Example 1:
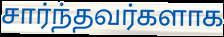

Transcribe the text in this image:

சார்ந்தவர்களாக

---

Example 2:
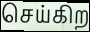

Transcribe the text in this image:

செய்கிற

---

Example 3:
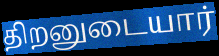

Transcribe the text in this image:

திறனுடையார்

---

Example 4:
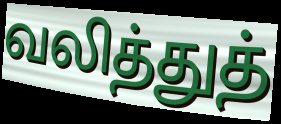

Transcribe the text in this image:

வலித்துத்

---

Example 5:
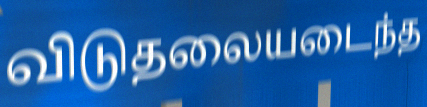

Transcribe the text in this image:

விடுதலையடைந்த